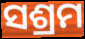
ସଶ୍ରମ